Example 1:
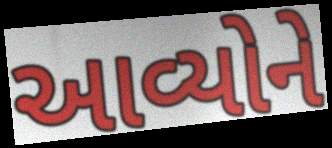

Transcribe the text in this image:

આવ્યોને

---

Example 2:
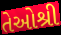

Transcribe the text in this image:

તેઓશ્રી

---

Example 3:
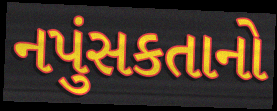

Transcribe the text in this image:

નપુંસકતાનો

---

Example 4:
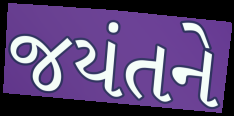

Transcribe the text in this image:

જયંતને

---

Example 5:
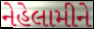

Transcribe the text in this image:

નેહેલામીને